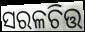
ସରଳଚିତ୍ତ